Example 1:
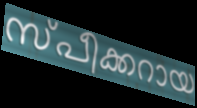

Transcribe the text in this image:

സ്പീക്കറായ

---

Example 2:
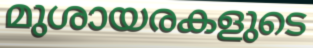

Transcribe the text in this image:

മുശായരകളുടെ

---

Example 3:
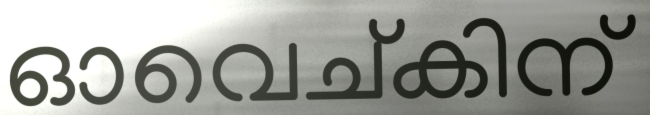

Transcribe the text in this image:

ഓവെച്കിന്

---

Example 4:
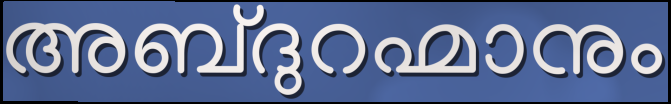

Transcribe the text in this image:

അബ്ദുറഹ്മാനും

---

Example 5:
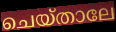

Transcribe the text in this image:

ചെയ്താലേ